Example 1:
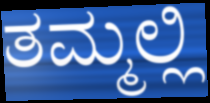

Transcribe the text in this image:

ತಮ್ಮಲ್ಲಿ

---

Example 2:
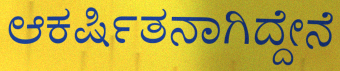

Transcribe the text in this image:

ಆಕರ್ಷಿತನಾಗಿದ್ದೇನೆ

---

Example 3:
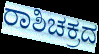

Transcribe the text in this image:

ರಾಶಿಚಕ್ರದ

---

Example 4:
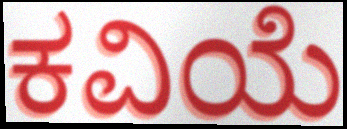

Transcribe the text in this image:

ಕವಿಯೆ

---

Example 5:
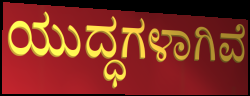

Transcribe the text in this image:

ಯುದ್ಧಗಳಾಗಿವೆ